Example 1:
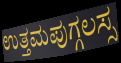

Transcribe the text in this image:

ಉತ್ತಮಪುಗ್ಗಲಸ್ಸ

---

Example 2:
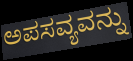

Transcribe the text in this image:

ಅಪಸವ್ಯವನ್ನು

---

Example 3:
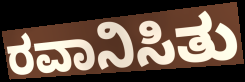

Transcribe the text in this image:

ರವಾನಿಸಿತು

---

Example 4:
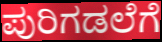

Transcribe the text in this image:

ಪುರಿಗಡಲೆಗೆ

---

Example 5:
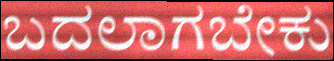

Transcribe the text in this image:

ಬದಲಾಗಬೇಕು